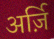
अर्ज़ि